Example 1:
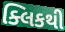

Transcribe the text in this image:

ક્લિકથી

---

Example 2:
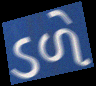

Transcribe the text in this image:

ડળે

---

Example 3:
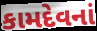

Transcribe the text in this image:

કામદેવનાં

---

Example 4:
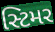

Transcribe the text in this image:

સ્ટિમર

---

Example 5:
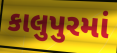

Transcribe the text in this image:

કાલુપુરમાં